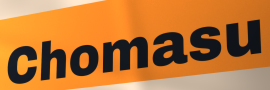
Chomasu